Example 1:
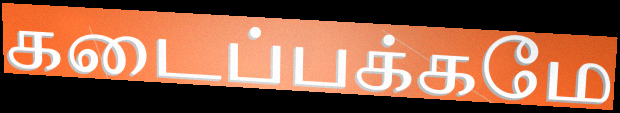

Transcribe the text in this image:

கடைப்பக்கமே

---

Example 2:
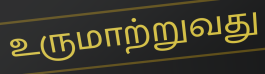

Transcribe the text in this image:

உருமாற்றுவது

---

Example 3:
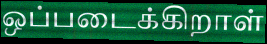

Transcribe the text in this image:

ஒப்படைக்கிறாள்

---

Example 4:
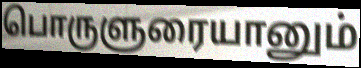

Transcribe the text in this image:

பொருளுரையானும்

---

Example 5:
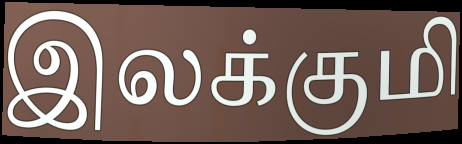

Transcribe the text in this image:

இலக்குமி